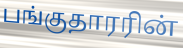
பங்குதாரரின்